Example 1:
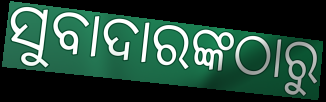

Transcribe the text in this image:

ସୁବାଦାରଙ୍କଠାରୁ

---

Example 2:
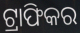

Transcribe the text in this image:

ଟ୍ରାଫିକର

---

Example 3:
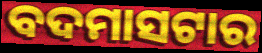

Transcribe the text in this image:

ବଦମାସଟାର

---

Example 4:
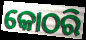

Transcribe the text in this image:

କୋଠରି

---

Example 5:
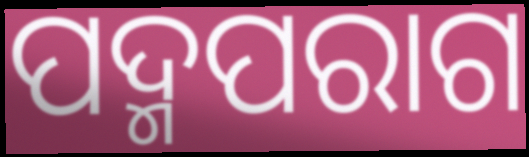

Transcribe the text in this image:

ପଦ୍ମପରାଗ